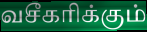
வசீகரிக்கும்